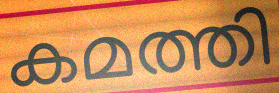
കമത്തി